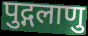
पुद्गलाणु